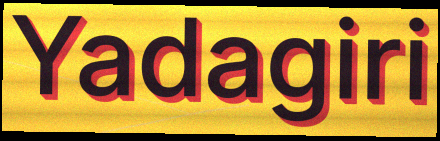
Yadagiri